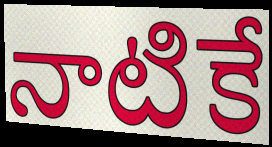
నాటికే